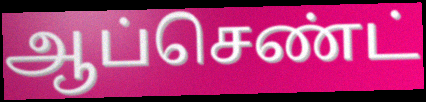
ஆப்செண்ட்